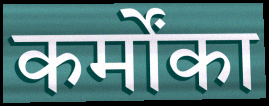
कर्मोंका